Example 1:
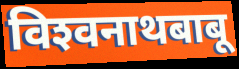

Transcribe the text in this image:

विश्‍वनाथबाबू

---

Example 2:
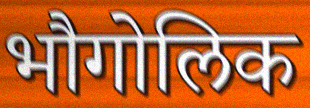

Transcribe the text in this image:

भौगोलिक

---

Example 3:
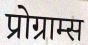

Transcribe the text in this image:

प्रोग्राम्स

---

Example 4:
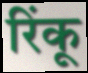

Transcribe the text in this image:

रिंकू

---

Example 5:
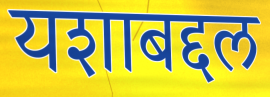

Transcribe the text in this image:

यशाबद्दल